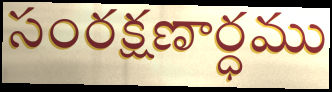
సంరక్షణార్ధము